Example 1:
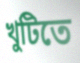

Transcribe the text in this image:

খুটিতে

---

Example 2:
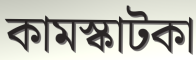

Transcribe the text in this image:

কামস্কাটকা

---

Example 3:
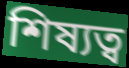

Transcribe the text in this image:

শিষ্যত্ব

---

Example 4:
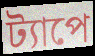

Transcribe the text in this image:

ট্যাপে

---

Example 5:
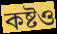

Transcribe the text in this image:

কষ্টও